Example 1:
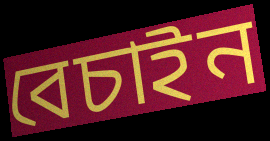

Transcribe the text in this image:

বেচাইন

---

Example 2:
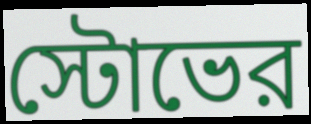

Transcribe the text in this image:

স্টোভের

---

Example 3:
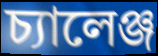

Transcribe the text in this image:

চ্যালেঞ্জ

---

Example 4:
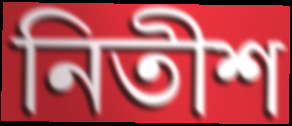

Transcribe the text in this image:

নিতীশ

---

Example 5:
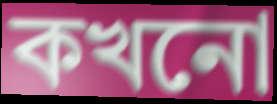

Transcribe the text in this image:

কখনো